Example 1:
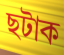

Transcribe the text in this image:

ছটাক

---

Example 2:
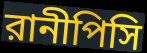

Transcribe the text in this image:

রানীপিসি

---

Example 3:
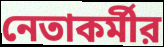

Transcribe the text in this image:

নেতাকর্মীর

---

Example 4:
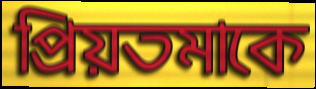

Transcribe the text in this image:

প্রিয়তমাকে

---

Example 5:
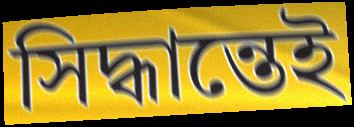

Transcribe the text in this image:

সিদ্ধান্তেই